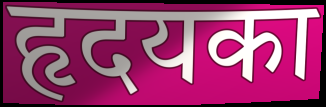
हृदयका